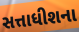
સત્તાધીશના